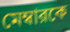
মেম্বারকে